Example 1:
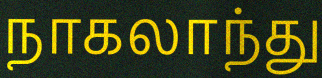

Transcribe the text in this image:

நாகலாந்து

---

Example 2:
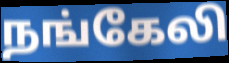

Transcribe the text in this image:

நங்கேலி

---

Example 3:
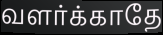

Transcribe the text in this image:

வளர்க்காதே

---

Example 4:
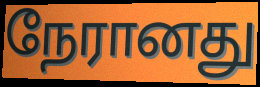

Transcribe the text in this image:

நேரானது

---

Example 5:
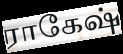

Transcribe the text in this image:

ராகேஷ்